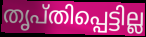
തൃപ്തിപ്പെട്ടില്ല